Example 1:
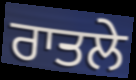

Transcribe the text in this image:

ਰਾਤਲੇ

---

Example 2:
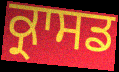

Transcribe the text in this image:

ਕ੍ਰਾਸਡ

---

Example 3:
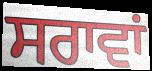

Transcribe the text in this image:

ਸਰਾਵਾਂ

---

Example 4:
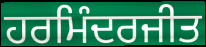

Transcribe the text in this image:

ਹਰਮਿੰਦਰਜੀਤ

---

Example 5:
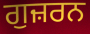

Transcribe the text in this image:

ਗੁਜ਼ਰਨ